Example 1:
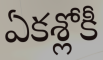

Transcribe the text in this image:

ఏకశ్లోకీ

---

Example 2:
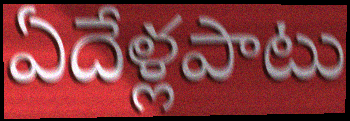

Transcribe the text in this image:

ఏదేళ్లపాటు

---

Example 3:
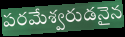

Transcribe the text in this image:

పరమేశ్వరుడనైన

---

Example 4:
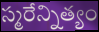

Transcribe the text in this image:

స్మరేన్నిత్యం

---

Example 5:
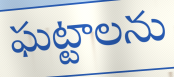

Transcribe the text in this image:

ఘట్టాలను